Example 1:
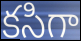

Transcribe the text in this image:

కసిగా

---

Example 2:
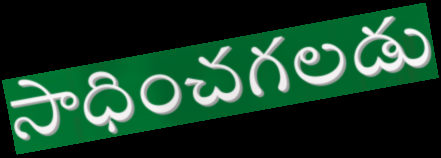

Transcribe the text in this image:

సాధించగలడు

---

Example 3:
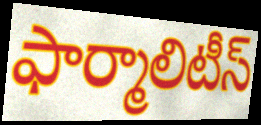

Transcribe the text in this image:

ఫార్మాలిటీస్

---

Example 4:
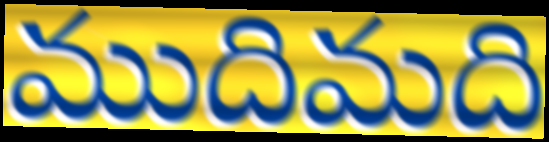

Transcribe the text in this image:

ముదిమది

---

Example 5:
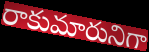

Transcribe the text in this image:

రాకుమారునిగా